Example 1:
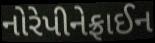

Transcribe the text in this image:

નોરેપીનેફ્રાઈન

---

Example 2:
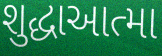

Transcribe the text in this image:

શુદ્ધાઆત્મા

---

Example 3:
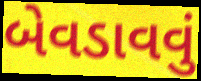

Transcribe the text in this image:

બેવડાવવું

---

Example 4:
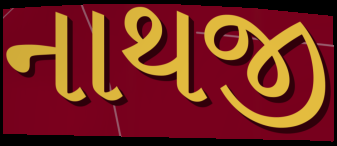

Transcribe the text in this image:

નાથજી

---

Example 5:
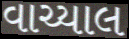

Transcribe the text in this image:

વાચ્યાલ